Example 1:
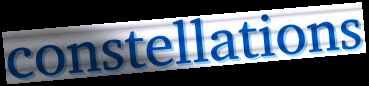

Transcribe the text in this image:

constellations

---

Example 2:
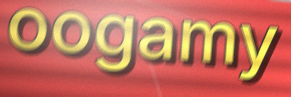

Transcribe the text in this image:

oogamy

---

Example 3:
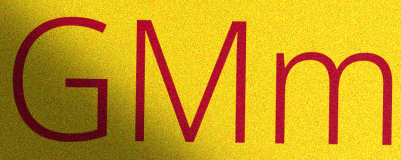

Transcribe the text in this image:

GMm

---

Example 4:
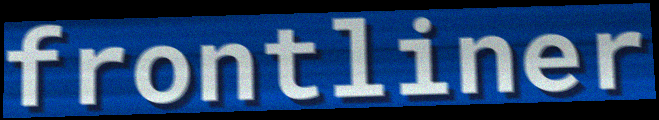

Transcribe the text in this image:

frontliner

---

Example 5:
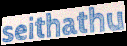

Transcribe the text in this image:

seithathu